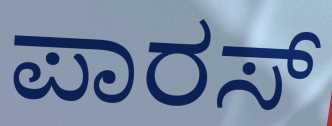
ಪಾರಸ್